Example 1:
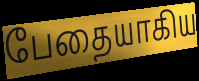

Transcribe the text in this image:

பேதையாகிய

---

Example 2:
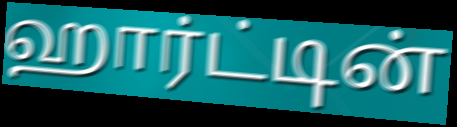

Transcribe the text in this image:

ஹார்ட்டின்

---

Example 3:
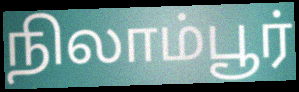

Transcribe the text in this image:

நிலாம்பூர்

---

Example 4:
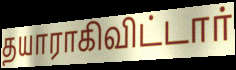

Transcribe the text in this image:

தயாராகிவிட்டார்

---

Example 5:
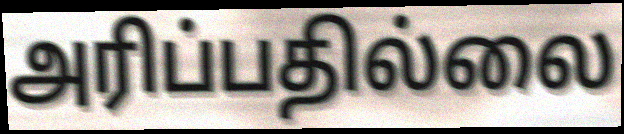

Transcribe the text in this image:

அரிப்பதில்லை